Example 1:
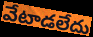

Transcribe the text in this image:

వేటాడలేదు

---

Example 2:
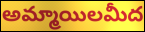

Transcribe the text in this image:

అమ్మాయిలమీద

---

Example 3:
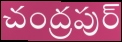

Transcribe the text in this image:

చంద్రపుర్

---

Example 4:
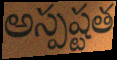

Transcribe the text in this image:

అస్పష్టత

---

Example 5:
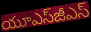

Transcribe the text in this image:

యూఎస్‌జీఎస్